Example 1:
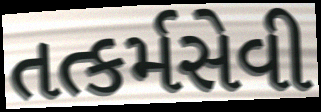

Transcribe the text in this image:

તત્કર્મસેવી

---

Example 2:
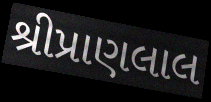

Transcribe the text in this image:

શ્રીપ્રાણલાલ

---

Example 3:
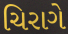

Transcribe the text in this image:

ચિરાગે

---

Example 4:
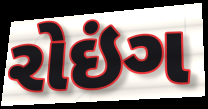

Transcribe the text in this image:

રોઇંગ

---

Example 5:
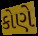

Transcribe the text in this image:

કોણે